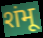
शंभू